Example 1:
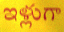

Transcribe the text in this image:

ఇళ్లుగా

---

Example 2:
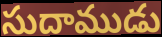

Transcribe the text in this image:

సుదాముడు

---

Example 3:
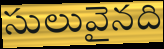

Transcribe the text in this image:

సులువైనది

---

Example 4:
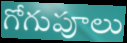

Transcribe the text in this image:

గోగుపూలు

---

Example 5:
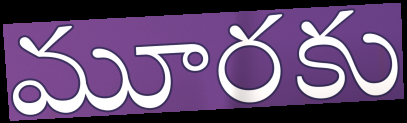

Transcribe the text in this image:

మూరకు